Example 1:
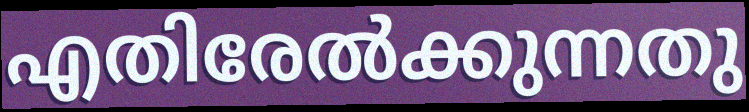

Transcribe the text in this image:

എതിരേൽക്കുന്നതു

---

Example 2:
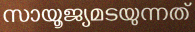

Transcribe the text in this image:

സായൂജ്യമടയുന്നത്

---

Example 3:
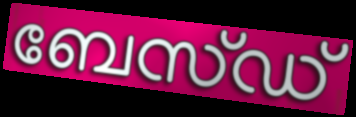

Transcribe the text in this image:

ബേസ്ഡ്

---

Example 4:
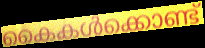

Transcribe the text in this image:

കൈകൾക്കൊണ്ട്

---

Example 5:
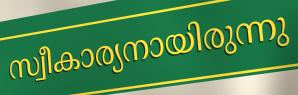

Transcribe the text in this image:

സ്വീകാര്യനായിരുന്നു